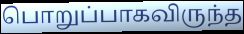
பொறுப்பாகவிருந்த